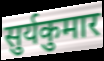
सुर्यकुमार